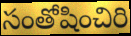
సంతోషించిరి